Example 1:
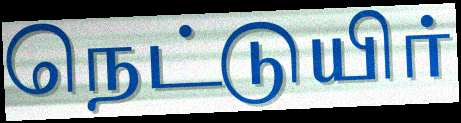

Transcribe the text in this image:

நெட்டுயிர்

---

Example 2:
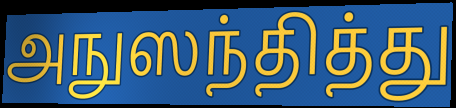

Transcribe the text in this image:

அநுஸந்தித்து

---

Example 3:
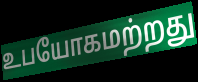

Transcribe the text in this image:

உபயோகமற்றது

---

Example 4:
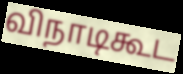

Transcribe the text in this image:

விநாடிகூட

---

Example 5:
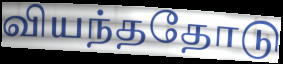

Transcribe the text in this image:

வியந்ததோடு